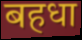
बहधा